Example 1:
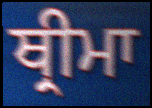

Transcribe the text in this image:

ਥ੍ਰੀਮਾ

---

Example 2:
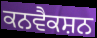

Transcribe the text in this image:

ਕਨਵੈਕਸ਼ਨ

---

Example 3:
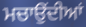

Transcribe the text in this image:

ਮਚਾਉਂਦੀਆਂ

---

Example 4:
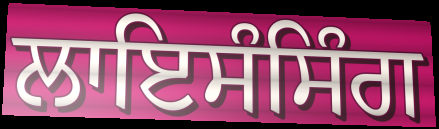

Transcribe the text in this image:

ਲਾਇਸੰਸਿੰਗ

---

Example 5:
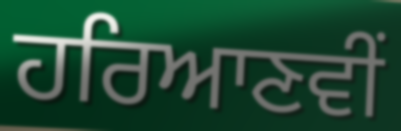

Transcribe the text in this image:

ਹਰਿਆਣਵੀਂ